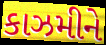
કાઝમીને